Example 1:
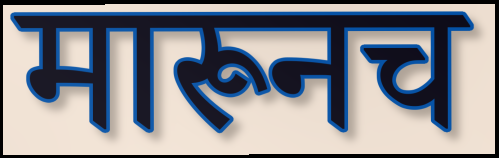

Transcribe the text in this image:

मारूनच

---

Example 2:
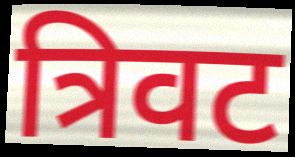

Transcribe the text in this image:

त्रिवट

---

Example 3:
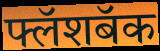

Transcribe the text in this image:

फ्लॅशबॅक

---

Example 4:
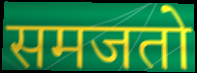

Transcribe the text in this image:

समजतो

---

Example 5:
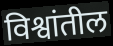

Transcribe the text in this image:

विश्वांतील